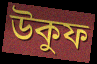
উকুফ